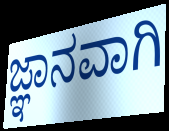
ಜ್ಞಾನವಾಗಿ